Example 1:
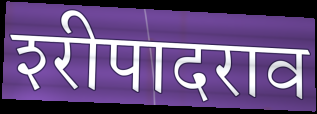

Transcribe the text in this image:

श्रीपादराव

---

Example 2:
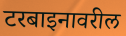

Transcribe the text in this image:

टरबाइनावरील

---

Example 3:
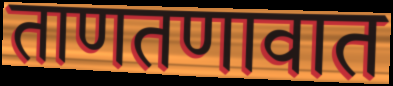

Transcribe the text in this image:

ताणतणावात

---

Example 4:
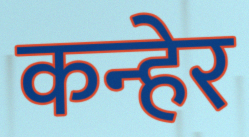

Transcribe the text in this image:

कन्हेर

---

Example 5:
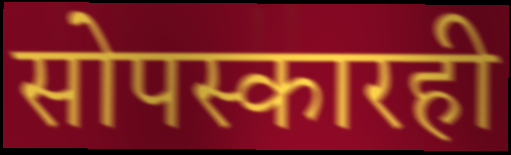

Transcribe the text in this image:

सोपस्कारही